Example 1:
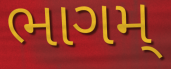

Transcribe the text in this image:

ભાગમ્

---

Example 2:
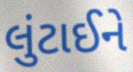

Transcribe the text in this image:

લુંટાઈને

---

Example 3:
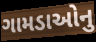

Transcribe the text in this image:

ગામડાઓનુ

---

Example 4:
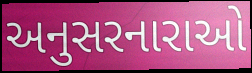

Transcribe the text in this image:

અનુસરનારાઓ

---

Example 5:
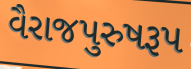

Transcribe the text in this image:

વૈરાજપુરુષરૂપ